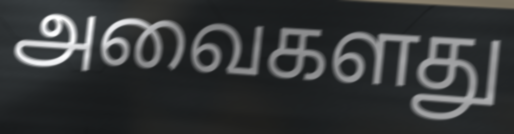
அவைகளது